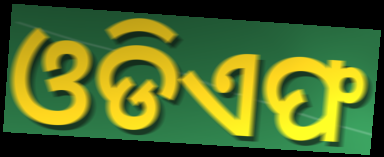
ଓଡିଏଫ